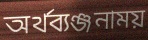
অর্থব্যঞ্জনাময়